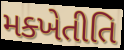
મક્ખેતીતિ